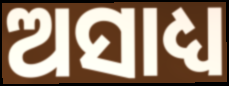
ଅସାଧ୍ୟ